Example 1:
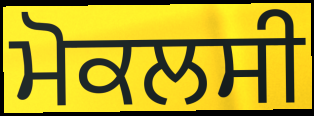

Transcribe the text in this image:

ਮੋਕਲਸੀ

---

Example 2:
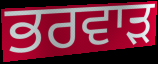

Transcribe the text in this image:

ਭਰਵਾੜ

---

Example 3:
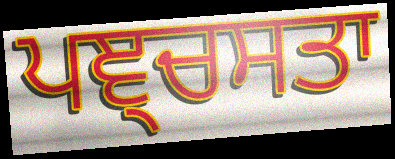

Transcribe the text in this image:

ਪਞ੍ਚਸਤਾ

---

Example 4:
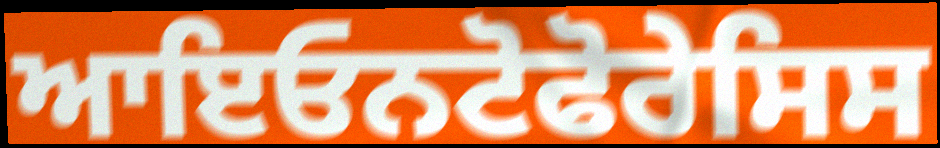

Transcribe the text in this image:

ਆਇਓਨਟੋਫੋਰੇਸਿਸ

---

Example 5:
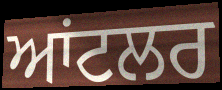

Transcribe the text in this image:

ਆਂਟਲਰ